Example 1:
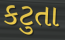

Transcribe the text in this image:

કટુતા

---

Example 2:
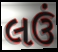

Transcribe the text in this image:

લઉં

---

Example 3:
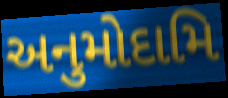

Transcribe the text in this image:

અનુમોદામિ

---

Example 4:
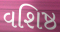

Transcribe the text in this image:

વશિષ્ઠ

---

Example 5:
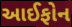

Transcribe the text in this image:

આઈફોન